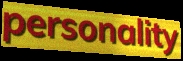
personality